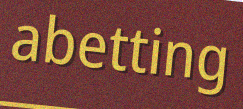
abetting